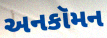
અનકૉમન